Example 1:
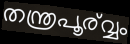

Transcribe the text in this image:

തന്ത്രപൂര്വ്വം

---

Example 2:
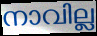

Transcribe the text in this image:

നാവില്ല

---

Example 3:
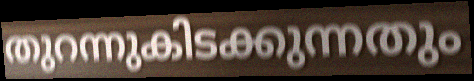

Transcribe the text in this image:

തുറന്നുകിടക്കുന്നതും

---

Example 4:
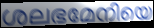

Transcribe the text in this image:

ശലഭമേനിയെ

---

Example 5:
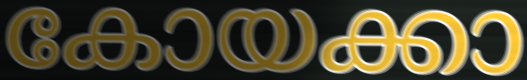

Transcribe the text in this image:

കോയക്കാ